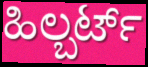
ಹಿಲ್ಬರ್ಟ್